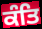
ਕੰਤਿ